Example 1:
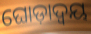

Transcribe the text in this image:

ଘୋଡ଼ାଦ୍ୱୟ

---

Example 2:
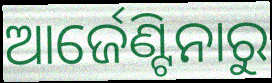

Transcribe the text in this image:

ଆର୍ଜେଣ୍ଟିନାରୁ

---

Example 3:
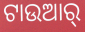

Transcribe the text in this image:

ଟାଉଆର୍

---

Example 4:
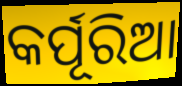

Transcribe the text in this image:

କର୍ପୂରିଆ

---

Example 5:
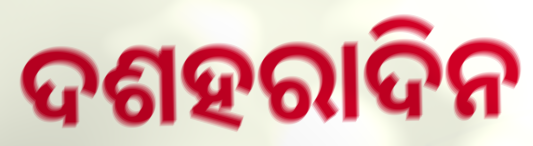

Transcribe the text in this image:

ଦଶହରାଦିନ